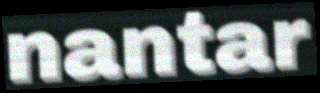
nantar